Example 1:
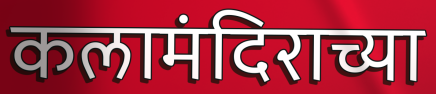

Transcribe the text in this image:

कलामंदिराच्या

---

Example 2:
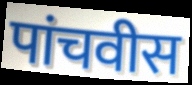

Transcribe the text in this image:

पांचवीस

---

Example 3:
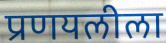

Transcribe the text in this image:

प्रणयलीला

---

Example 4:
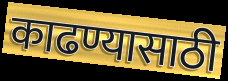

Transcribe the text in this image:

काढण्यासाठी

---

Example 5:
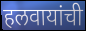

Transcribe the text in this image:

हलवायांची